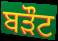
ਬੜੌਟ